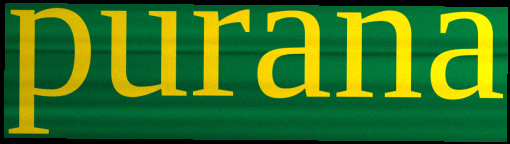
purana